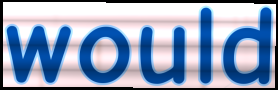
would